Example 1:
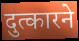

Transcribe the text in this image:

दुत्कारने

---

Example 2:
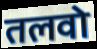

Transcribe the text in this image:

तलवो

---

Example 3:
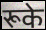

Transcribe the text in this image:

रूके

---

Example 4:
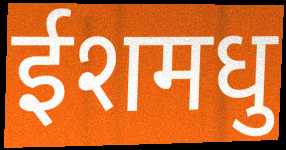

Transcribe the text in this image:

ईशमधु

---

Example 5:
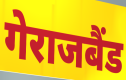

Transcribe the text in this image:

गेराजबैंड